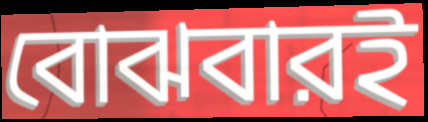
বোঝবারই